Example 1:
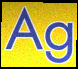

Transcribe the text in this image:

Ag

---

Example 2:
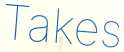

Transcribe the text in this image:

Takes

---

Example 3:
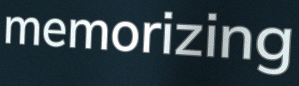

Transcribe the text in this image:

memorizing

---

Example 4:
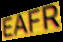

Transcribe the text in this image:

EAFR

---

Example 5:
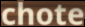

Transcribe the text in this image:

chote